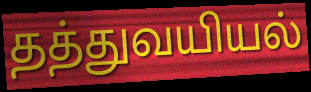
தத்துவயியல்